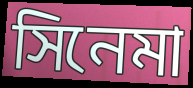
সিনেমা